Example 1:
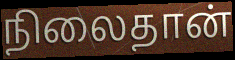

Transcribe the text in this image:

நிலைதான்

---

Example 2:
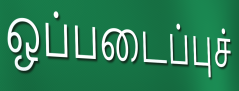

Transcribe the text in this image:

ஒப்படைப்புச்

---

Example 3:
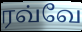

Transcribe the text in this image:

ரவ்வே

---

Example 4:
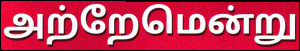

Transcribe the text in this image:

அற்றேமென்று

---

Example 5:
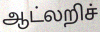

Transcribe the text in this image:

ஆட்லறிச்